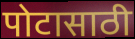
पोटासाठी